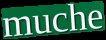
muche